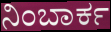
ನಿಂಬಾರ್ಕ